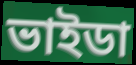
ভাইডা